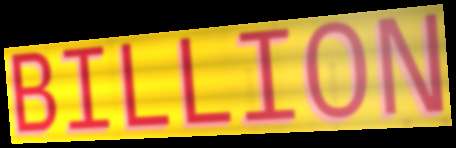
BILLION